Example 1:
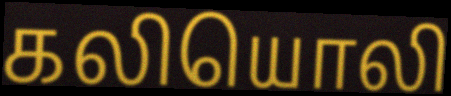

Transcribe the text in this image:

கலியொலி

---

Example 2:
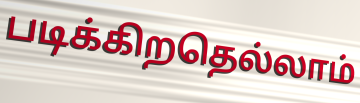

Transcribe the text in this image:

படிக்கிறதெல்லாம்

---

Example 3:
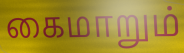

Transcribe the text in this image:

கைமாறும்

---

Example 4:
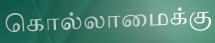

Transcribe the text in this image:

கொல்லாமைக்கு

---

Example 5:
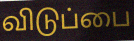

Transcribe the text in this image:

விடுப்பை